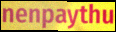
nenpaythu